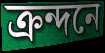
ক্রন্দনে